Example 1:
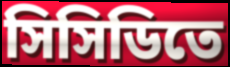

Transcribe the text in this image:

সিসিডিতে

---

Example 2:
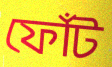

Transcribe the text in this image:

ফোঁট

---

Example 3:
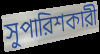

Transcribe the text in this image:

সুপারিশকারী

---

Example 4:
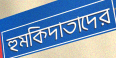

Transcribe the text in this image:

হুমকিদাতাদের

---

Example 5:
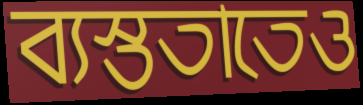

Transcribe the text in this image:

ব্যস্ততাতেও